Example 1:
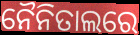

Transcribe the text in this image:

ନୈନିତାଲରେ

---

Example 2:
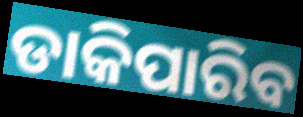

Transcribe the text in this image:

ଡାକିପାରିବ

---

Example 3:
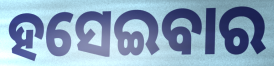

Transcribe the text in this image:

ହସେଇବାର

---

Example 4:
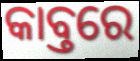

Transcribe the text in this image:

କାବ୍ତରେ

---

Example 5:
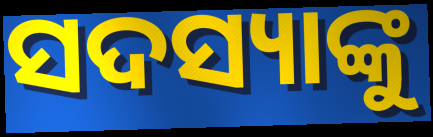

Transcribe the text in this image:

ସଦସ୍ୟାଙ୍କୁ